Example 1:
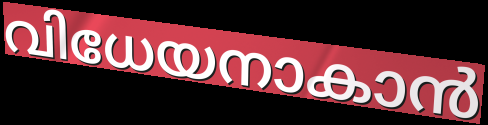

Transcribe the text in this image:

വിധേയനാകാൻ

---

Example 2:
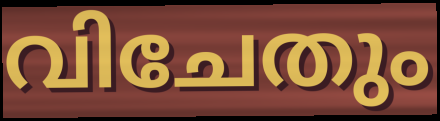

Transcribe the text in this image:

വിചേതും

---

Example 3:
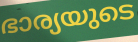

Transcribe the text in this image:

ഭാര്യയുടെ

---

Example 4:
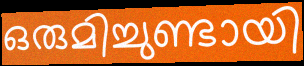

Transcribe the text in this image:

ഒരുമിച്ചുണ്ടായി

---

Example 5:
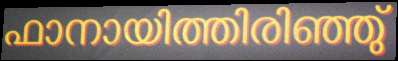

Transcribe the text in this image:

ഫാനായിത്തിരിഞ്ഞു്